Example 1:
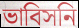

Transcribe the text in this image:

ভাবিসনি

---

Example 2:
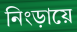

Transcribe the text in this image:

নিংড়ায়ে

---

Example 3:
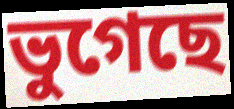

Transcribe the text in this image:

ভুগেছে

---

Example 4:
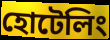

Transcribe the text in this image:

হোটেলিং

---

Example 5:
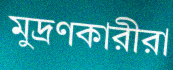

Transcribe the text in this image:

মুদ্রণকারীরা